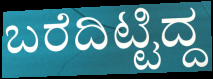
ಬರೆದಿಟ್ಟಿದ್ದ